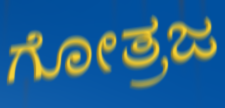
ಗೋತ್ರಜ